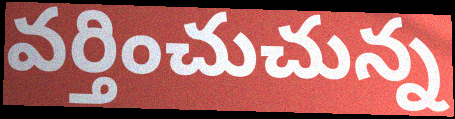
వర్తించుచున్న